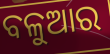
ବଳୁଆର